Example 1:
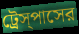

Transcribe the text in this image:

ট্রেস্‌পাসের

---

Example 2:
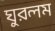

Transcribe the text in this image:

ঘুরলম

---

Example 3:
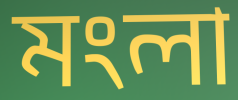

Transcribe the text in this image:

মংলা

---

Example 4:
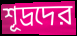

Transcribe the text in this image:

শূদ্রদের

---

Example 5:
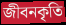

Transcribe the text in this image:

জীবনকৃতি